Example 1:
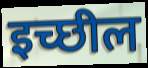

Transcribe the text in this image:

इच्छील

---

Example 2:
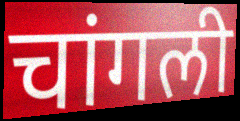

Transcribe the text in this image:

चांगली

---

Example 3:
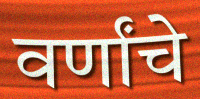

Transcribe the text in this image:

वर्णांचे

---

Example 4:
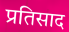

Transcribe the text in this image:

प्रतिसाद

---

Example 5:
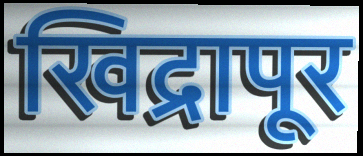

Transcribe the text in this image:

खिद्रापूर